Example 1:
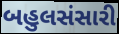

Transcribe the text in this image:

બહુલસંસારી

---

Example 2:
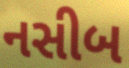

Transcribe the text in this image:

નસીબ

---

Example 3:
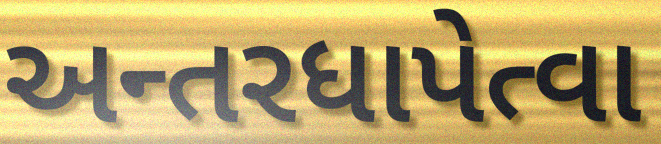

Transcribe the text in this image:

અન્તરધાપેત્વા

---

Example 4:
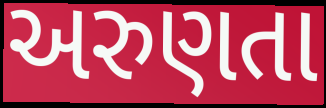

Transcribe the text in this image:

અરુણતા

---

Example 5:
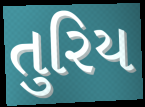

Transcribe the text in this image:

તુરિય